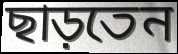
ছাড়তেন